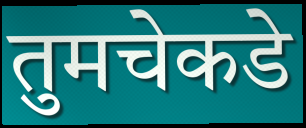
तुमचेकडे